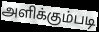
அளிக்கும்படி